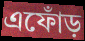
এফোঁড়